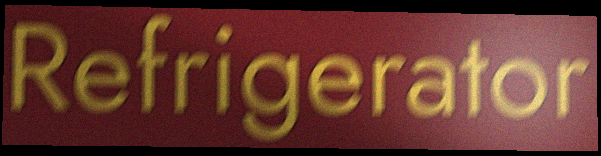
Refrigerator